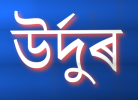
উৰ্দুৰ